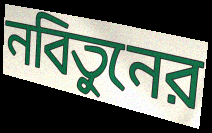
নবিতুনের